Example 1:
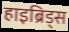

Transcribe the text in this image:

हाइब्रिड्स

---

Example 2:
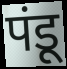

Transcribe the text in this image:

पंडू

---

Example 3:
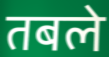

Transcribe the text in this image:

तबले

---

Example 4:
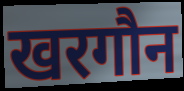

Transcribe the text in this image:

खरगौन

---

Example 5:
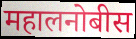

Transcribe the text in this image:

महालनोबीस